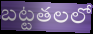
బట్టతలలో